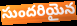
సుందరియైన